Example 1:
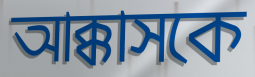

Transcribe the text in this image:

আক্কাসকে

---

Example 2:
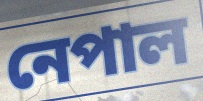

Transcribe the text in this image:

নেপাল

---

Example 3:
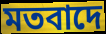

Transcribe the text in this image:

মতবাদে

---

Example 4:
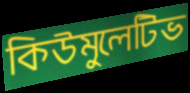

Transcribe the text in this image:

কিউমুলেটিভ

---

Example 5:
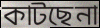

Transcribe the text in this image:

কাটছেনা